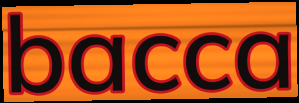
bacca